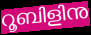
റൂബിളിനു